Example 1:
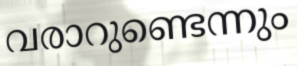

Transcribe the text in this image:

വരാറുണ്ടെന്നും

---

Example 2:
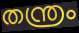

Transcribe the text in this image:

തന്ത്രം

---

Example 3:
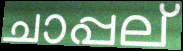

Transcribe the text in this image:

ചാപ്പല്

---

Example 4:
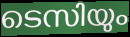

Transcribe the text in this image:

ടെസിയും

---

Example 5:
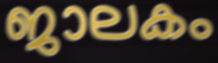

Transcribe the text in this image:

ജാലകം